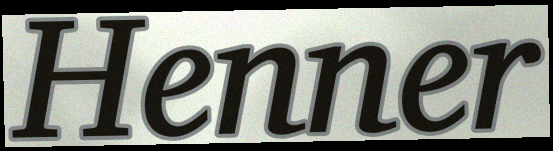
Henner